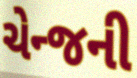
ચેન્જની